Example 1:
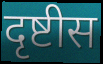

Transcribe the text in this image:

दृष्टीस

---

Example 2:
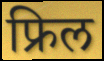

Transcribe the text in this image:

फ्रिल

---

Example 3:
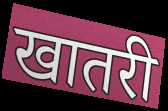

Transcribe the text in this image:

खातरी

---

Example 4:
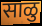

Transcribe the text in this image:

साळु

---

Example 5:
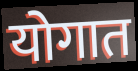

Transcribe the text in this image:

योगात